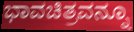
ಭಾವಚಿತ್ರವನ್ನೂ